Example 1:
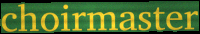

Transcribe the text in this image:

choirmaster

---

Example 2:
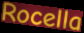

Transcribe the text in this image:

Rocella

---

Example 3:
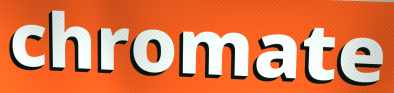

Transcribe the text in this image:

chromate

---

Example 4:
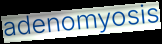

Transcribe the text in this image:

adenomyosis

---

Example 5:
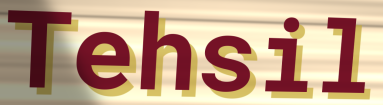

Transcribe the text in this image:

Tehsil